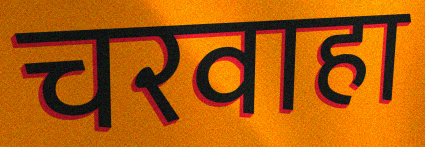
चरवाहा